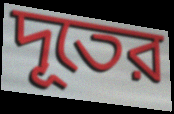
দূতের